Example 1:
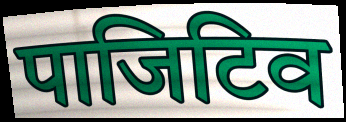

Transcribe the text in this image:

पाजिटिव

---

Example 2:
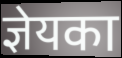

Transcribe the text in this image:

ज्ञेयका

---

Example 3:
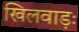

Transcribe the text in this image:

खिलवाड़ः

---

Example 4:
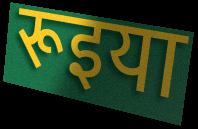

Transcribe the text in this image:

रूइया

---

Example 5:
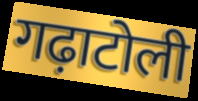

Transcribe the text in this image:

गढ़ाटोली